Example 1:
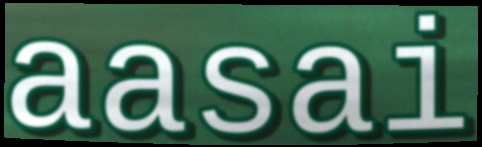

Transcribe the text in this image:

aasai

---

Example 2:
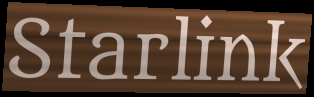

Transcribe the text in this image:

Starlink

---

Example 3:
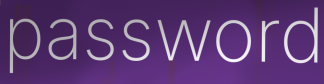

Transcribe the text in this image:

password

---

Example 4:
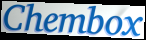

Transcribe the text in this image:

Chembox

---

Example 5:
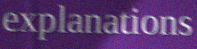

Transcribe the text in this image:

explanations